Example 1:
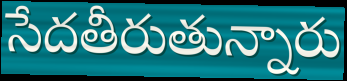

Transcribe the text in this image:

సేదతీరుతున్నారు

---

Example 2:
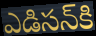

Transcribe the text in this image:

ఎడిసన్‌కి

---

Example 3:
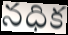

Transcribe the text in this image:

నధిక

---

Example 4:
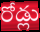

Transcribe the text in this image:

రోడ్లు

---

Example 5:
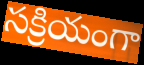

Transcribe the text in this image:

సక్రియంగా